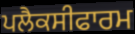
ਪਲੈਕਸੀਫਾਰਮ